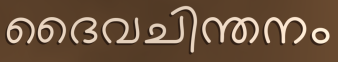
ദൈവചിന്തനം